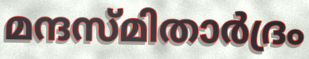
മന്ദസ്മിതാർദ്രം